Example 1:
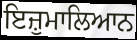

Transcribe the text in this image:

ਇਜ਼ੁਮਾਲਿਆਨ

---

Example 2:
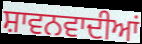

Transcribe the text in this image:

ਸ਼ਾਵਨਵਾਦੀਆਂ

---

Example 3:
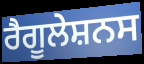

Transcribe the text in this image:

ਰੈਗੂਲੇਸ਼ਨਸ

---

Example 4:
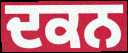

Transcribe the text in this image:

ਦਕਨ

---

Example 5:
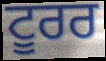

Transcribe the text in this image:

ਟੂਰਰ